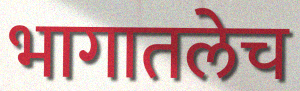
भागातलेच